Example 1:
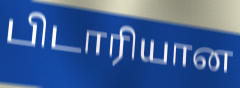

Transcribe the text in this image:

பிடாரியான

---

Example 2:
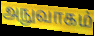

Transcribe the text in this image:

அநுவாகம்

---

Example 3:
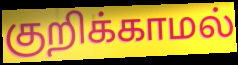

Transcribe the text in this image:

குறிக்காமல்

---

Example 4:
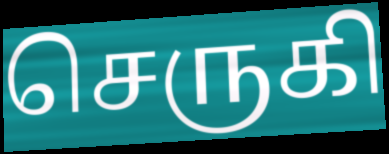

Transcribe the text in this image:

செருகி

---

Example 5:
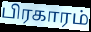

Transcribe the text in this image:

பிரகாரம்